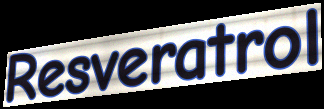
Resveratrol